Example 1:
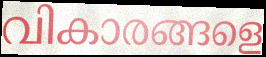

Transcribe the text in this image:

വികാരങ്ങളെ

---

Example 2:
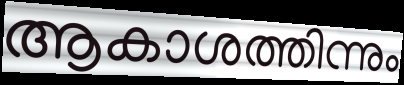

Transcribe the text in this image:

ആകാശത്തിന്നും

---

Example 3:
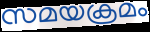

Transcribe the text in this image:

സമയക്രമം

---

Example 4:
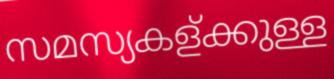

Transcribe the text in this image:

സമസ്യകള്ക്കുള്ള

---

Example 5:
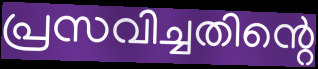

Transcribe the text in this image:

പ്രസവിച്ചതിന്റെ